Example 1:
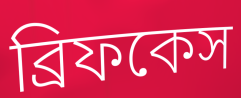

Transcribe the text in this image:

ব্রিফকেস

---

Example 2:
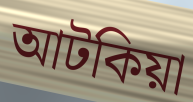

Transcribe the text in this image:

আটকিয়া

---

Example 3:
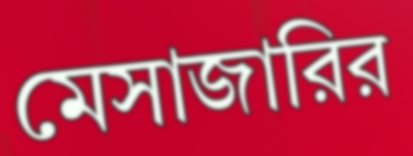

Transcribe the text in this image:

মেসাজারির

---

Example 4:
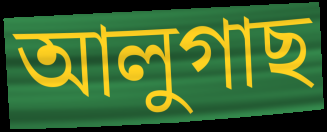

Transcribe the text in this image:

আলুগাছ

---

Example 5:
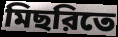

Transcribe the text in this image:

মিছরিতে